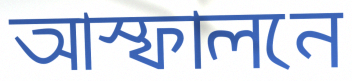
আস্ফালনে